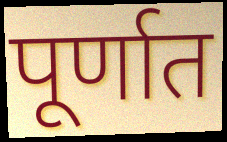
पूर्णात